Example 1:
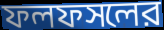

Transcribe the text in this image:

ফলফসলের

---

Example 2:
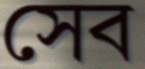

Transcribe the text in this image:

সেব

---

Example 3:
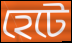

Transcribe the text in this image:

হেটে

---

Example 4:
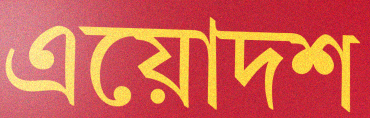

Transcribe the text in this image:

এয়োদশ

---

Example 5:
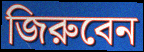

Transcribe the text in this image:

জিরুবেন